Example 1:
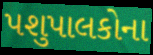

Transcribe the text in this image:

પશુપાલકોના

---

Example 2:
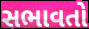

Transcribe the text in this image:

સભાવતો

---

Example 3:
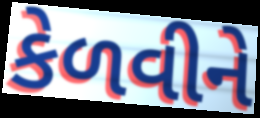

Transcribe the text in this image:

કેળવીને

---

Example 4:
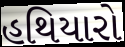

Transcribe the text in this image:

હથિયારો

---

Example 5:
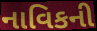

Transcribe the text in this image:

નાવિકની